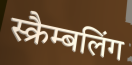
स्क्रैम्बलिंग